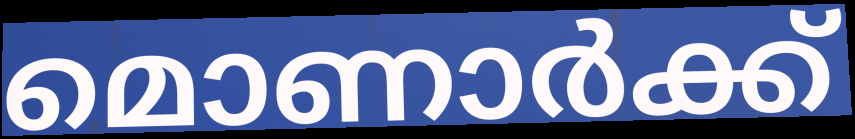
മൊണാർക്ക്